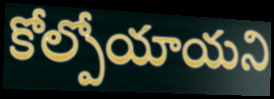
కోల్పోయాయని